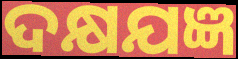
ଦକ୍ଷଯଜ୍ଞ